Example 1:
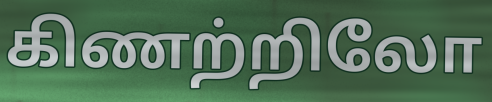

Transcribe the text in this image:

கிணற்றிலோ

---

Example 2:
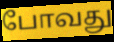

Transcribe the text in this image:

போவது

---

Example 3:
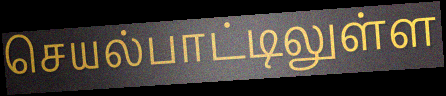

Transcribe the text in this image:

செயல்பாட்டிலுள்ள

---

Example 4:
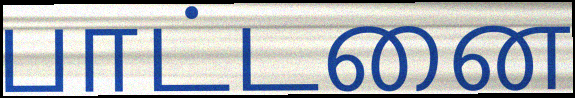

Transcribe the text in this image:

பாட்டனை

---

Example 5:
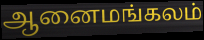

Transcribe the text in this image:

ஆனைமங்கலம்